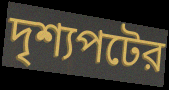
দৃশ্যপটের